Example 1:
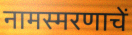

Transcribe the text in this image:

नामस्मरणाचें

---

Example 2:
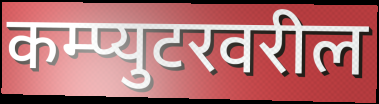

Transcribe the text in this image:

कम्प्युटरवरील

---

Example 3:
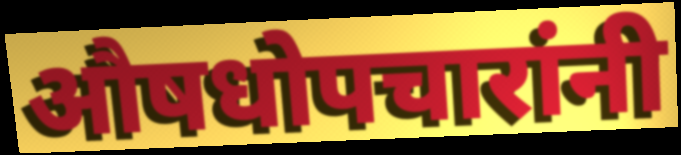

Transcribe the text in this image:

औषधोपचारांनी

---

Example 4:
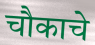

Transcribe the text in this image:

चौकाचे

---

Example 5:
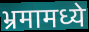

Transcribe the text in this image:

भ्रमामध्ये